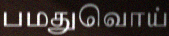
பமதுவொய்